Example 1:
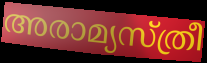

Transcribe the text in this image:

അരാമ്യസ്ത്രീ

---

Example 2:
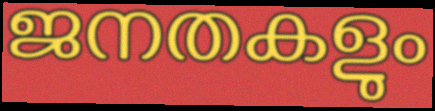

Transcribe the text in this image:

ജനതകളും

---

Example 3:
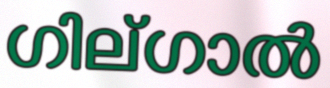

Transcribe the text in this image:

ഗില്ഗാൽ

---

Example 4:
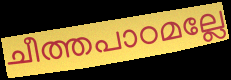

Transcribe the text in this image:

ചീത്തപാഠമല്ലേ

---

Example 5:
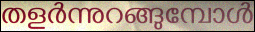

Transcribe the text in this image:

തളർന്നുറങ്ങുമ്പോൾ